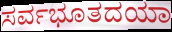
ಸರ್ವಭೂತದಯಾ